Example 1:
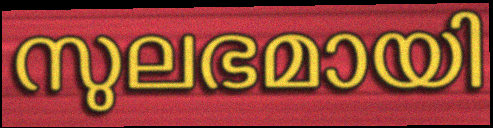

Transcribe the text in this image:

സുലഭമായി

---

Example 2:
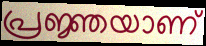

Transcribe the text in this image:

പ്രജ്ഞയാണ്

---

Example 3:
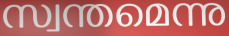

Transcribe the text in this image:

സ്വന്തമെന്നു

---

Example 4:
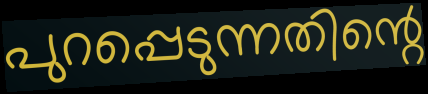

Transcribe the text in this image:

പുറപ്പെടുന്നതിന്റെ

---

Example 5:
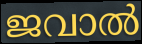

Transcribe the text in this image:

ജവാൽ